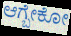
ಆಗ್ಬೇಕೋ